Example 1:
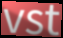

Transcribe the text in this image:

vst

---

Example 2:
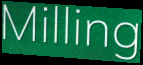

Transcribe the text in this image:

Milling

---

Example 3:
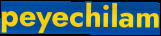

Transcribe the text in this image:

peyechilam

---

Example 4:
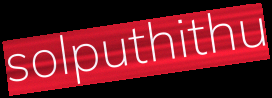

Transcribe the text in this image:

solputhithu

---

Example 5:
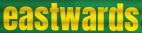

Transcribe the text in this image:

eastwards